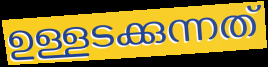
ഉള്ളടക്കുന്നത്